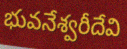
భువనేశ్వరీదేవి